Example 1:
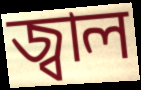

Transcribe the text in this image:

জ্বাল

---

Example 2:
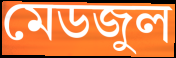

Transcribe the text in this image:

মেডজুল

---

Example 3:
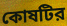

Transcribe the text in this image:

কোষটির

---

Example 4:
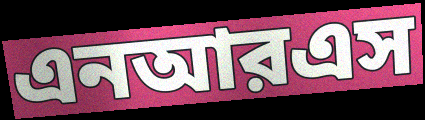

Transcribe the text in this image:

এনআরএস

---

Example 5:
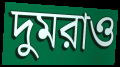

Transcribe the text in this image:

দুমরাও